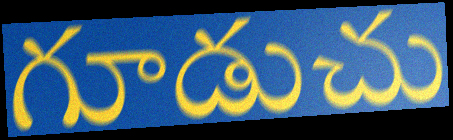
గూడుచు